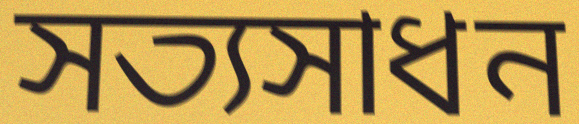
সত্যসাধন